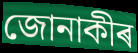
জোনাকীৰ